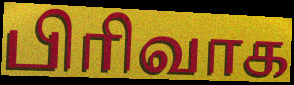
பிரிவாக